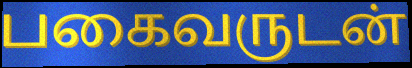
பகைவருடன்